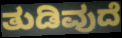
ತುಡಿವುದೆ